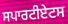
ਸਪਾਰਟੀਏਟਸ